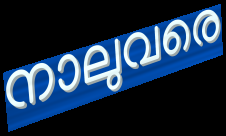
നാലുവരെ